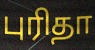
புரிதா